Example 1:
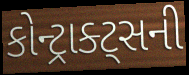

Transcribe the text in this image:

કોન્ટ્રાક્ટ્સની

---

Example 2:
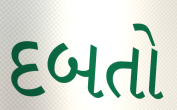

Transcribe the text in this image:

દબતો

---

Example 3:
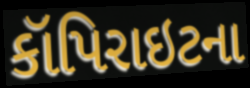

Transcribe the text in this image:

કૉપિરાઇટના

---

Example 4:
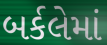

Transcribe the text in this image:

બર્કલેમાં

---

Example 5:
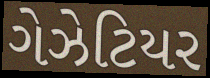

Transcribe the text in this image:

ગેઝેટિયર